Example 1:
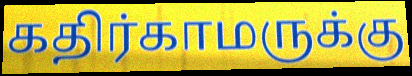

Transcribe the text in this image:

கதிர்காமருக்கு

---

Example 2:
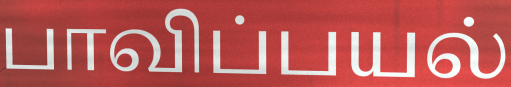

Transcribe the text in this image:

பாவிப்பயல்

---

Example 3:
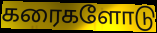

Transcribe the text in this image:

கரைகளோடு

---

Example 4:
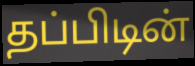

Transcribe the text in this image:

தப்பிடின்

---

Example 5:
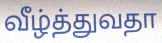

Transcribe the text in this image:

வீழ்த்துவதா